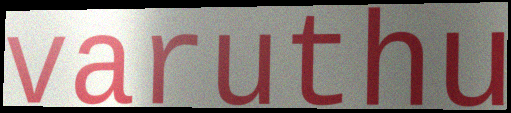
varuthu